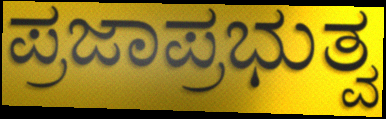
ಪ್ರಜಾಪ್ರಭುತ್ವ